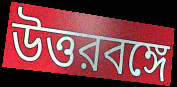
উত্তরবঙ্গে